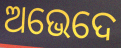
ଅଭେଦେ